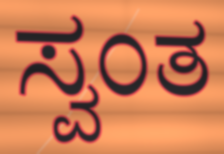
ಸ್ವಂತ